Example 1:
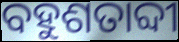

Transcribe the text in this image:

ବହୁଶତାବ୍ଦୀ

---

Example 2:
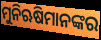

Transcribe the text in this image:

ମୁନିଋଷିମାନଙ୍କର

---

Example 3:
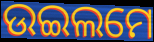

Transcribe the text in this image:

ଉଇଲମେ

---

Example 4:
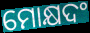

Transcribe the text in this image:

ମୋକ୍ଷଦଂ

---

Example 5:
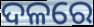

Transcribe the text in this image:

ଦଳରେ